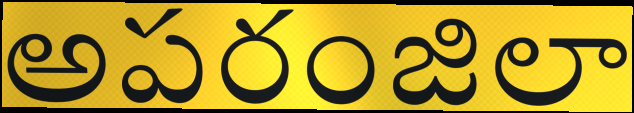
అపరంజిలా